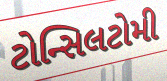
ટોન્સિલટોમી